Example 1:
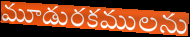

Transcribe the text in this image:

మూడురకములను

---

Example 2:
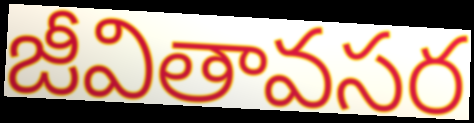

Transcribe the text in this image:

జీవితావసర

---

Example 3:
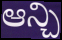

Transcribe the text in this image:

ఆన్చి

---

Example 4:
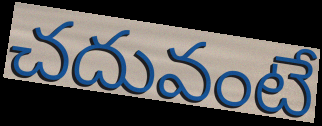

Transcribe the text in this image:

చదువంటే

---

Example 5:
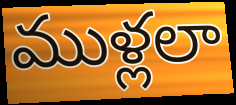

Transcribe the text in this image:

ముళ్లలా